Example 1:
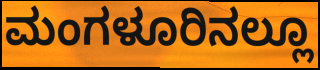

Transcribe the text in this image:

ಮಂಗಳೂರಿನಲ್ಲೂ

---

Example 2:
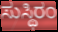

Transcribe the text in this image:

ಸುಸ್ಥಿರಂ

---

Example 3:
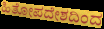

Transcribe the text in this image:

ಹಿತೋಪದೇಶದಿಂದ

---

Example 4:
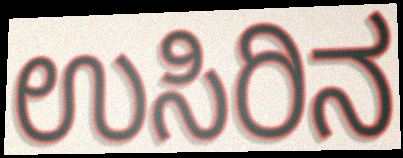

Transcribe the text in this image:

ಉಸಿರಿನ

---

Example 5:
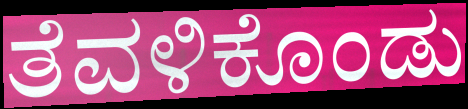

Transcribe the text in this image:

ತೆವಳಿಕೊಂಡು